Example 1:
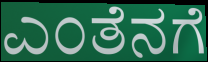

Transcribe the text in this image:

ಎಂತೆನಗೆ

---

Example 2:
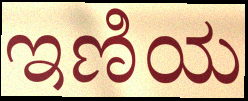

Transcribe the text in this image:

ಇಣಿಯ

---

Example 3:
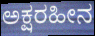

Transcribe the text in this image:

ಅಕ್ಷರಹೀನ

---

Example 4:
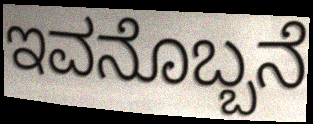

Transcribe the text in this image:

ಇವನೊಬ್ಬನೆ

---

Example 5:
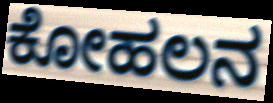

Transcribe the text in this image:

ಕೋಹಲನ